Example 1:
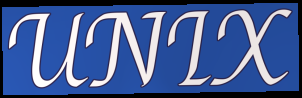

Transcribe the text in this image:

UNIX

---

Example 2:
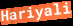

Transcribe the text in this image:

Hariyali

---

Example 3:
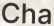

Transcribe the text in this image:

Cha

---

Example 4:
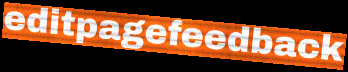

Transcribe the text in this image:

editpagefeedback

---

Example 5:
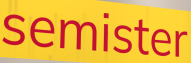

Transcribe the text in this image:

semister